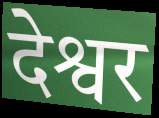
देश्वर